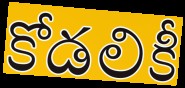
కోడలికీ